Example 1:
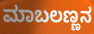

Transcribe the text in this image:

ಮಾಬಲಣ್ಣನ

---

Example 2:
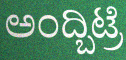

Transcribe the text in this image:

ಅಂದ್ಬಿಟ್ರೆ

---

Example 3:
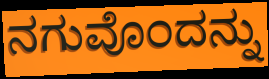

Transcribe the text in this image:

ನಗುವೊಂದನ್ನು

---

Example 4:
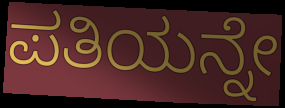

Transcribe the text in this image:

ಪತಿಯನ್ನೇ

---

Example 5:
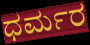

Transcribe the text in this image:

ಧರ್ಮರ